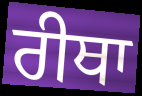
ਰੀਥਾ